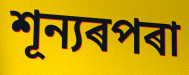
শূন্যৰপৰা